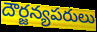
దౌర్జన్యపరులు